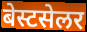
बेस्टसेलर